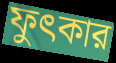
ফুৎকার